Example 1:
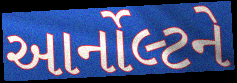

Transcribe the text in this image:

આર્નોલ્ટને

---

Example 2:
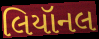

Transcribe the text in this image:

લિયૉનલ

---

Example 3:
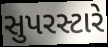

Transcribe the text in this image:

સુપરસ્ટારે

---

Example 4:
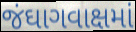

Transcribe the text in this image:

જંઘાગવાક્ષમાં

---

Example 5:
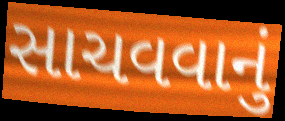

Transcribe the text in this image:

સાચવવાનું